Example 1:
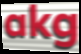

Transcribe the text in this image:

akg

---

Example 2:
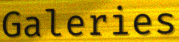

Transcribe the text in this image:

Galeries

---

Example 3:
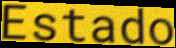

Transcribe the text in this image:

Estado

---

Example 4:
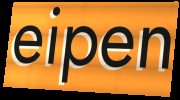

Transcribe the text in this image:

eipen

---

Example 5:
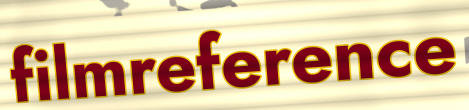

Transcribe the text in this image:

filmreference